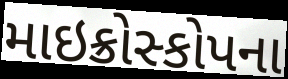
માઇક્રોસ્કોપના